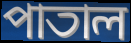
পাতাল